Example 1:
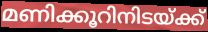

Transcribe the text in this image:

മണിക്കൂറിനിടയ്ക്ക്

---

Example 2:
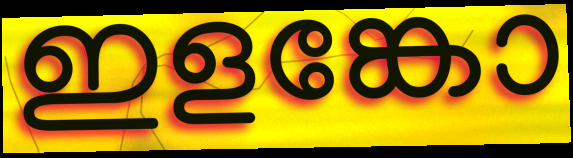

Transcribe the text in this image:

ഇളങ്കോ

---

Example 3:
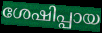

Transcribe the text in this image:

ശേഷിപ്പായ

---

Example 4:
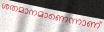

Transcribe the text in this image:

ശതമാനമാണെന്നാണ്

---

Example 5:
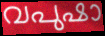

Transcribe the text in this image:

വപുഷാ